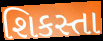
શિકસ્તા